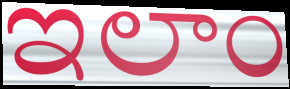
ఇలాం